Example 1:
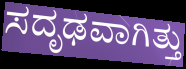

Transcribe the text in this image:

ಸದೃಢವಾಗಿತ್ತು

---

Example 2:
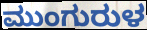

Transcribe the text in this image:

ಮುಂಗುರುಳ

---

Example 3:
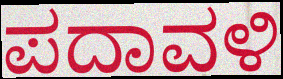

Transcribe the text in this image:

ಪದಾವಳಿ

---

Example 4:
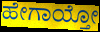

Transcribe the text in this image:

ಹೇಗಾಯ್ತೋ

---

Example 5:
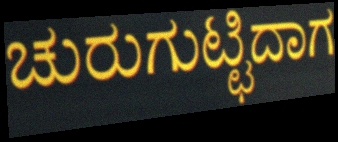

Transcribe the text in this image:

ಚುರುಗುಟ್ಟಿದಾಗ